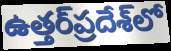
ఉత్తర్‌ప్రదేశ్‌లో